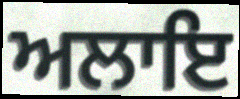
ਅਲਾਇ